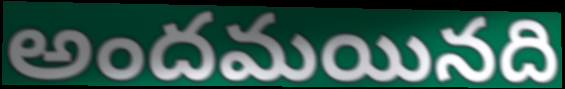
అందమయినది